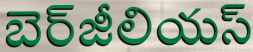
బెర్‌జీలియస్